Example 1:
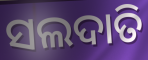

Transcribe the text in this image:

ସଲଦାତି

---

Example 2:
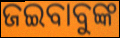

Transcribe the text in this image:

ଜଇବାବୁଙ୍କ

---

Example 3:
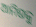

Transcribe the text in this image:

ଆମିଷକୁ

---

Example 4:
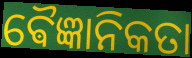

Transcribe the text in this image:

ଵୈଜ୍ଞାନିକତା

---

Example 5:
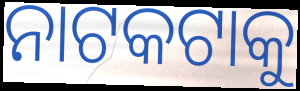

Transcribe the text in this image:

ନାଟକଟାକୁ